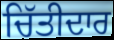
ਚਿੱਤੀਦਾਰ